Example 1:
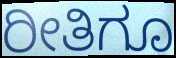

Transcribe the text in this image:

ರೀತಿಗೂ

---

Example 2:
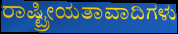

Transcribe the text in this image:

ರಾಷ್ಟ್ರೀಯತಾವಾದಿಗಳು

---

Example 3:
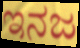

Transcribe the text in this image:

ಇನಜ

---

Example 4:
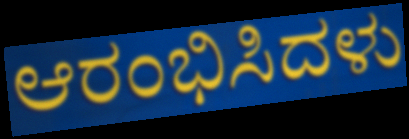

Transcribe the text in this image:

ಆರಂಭಿಸಿದಳು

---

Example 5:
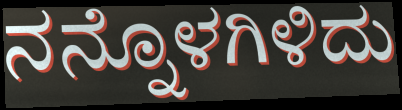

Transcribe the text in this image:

ನನ್ನೊಳಗಿಳಿದು